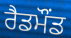
ਰੈਡਮੌਂਡ